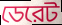
ডেরেট